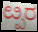
ೞ್ಪರ